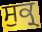
ਸੁਕ੍ਰ